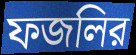
ফজলির